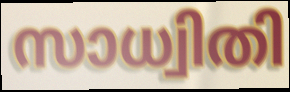
സാധ്വിതി